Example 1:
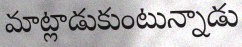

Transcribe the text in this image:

మాట్లాడుకుంటున్నాడు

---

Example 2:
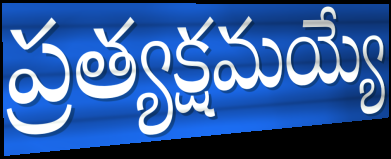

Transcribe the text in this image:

ప్రత్యక్షమయ్యే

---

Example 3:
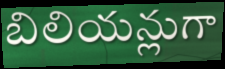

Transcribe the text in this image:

బిలియన్లుగా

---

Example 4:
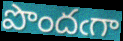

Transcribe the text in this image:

పొందఁగా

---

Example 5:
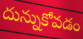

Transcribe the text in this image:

దున్నుకోవడం